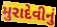
મુરાદેવીનું